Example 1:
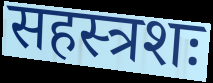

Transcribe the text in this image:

सहस्त्रशः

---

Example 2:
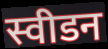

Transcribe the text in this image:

स्वीडन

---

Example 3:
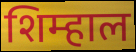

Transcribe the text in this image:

शिम्हाल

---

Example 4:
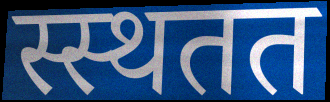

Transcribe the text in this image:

स्स्थतत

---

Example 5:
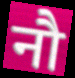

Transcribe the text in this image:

नौ